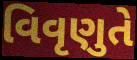
વિવૃણુતે